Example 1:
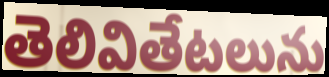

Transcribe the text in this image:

తెలివితేటలును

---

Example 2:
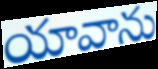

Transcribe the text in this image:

యావాను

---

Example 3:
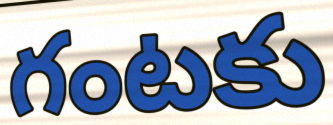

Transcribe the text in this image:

గంటకు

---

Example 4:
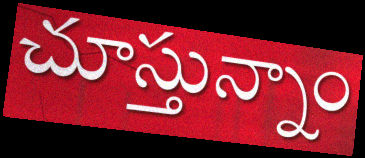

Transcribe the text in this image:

చూస్తున్నాం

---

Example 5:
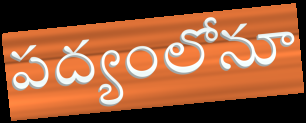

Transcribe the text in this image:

పద్యంలోనూ